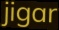
jigar